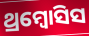
ଥ୍ରମ୍ବୋସିସ